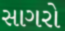
સાગરો